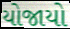
યોજાયો